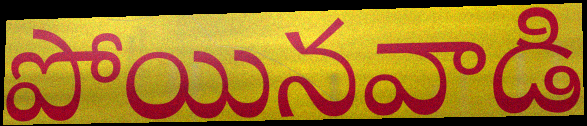
పోయినవాడి